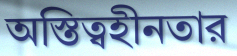
অস্তিত্বহীনতার